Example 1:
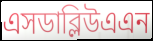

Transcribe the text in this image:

এসডাব্লিউএএন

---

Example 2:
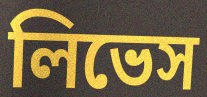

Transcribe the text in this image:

লিভেস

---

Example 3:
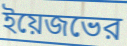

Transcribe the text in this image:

ইয়েজভের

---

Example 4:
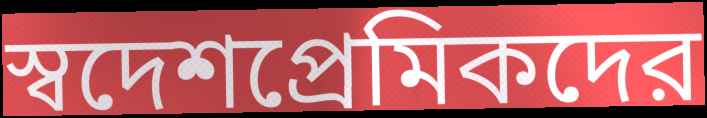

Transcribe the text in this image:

স্বদেশপ্রেমিকদের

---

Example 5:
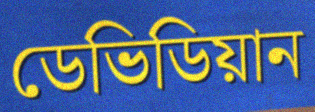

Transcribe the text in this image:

ডেভিডিয়ান